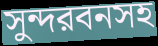
সুন্দরবনসহ